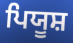
ਪਿਯੂਸ਼